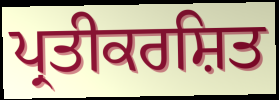
ਪ੍ਰਤੀਕਰਸ਼ਿਤ